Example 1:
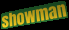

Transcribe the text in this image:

showman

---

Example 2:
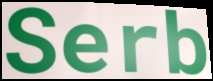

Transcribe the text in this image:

Serb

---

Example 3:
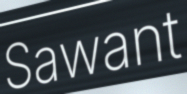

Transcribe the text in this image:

Sawant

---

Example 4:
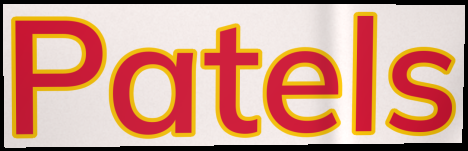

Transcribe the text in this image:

Patels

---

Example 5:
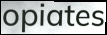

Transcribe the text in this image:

opiates